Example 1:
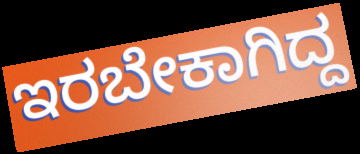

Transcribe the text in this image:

ಇರಬೇಕಾಗಿದ್ದ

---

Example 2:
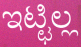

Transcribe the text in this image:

ಇಟ್ಟಿಲ್ಲ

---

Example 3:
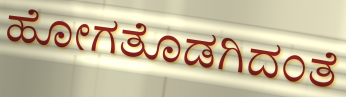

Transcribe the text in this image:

ಹೋಗತೊಡಗಿದಂತೆ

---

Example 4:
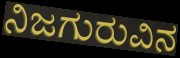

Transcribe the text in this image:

ನಿಜಗುರುವಿನ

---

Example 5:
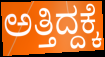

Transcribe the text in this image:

ಅತ್ತಿದ್ದಕ್ಕೆ